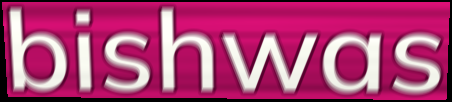
bishwas